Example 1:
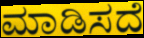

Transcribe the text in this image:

ಮಾಡಿಸದೆ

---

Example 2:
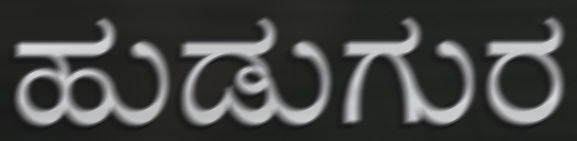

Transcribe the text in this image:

ಹುಡುಗುರ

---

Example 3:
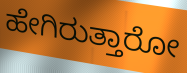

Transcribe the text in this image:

ಹೇಗಿರುತ್ತಾರೋ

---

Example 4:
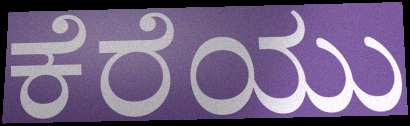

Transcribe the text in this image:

ಕೆರೆಯು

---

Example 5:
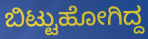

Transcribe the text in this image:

ಬಿಟ್ಟುಹೋಗಿದ್ದ